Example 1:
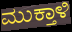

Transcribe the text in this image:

ಮುಕ್ತಾಳಿ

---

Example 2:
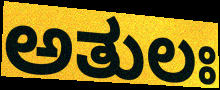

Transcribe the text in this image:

ಅತುಲಃ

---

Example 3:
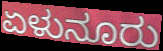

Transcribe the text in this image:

ಏಳುನೂರು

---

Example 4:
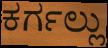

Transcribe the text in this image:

ಕರ್ಗಲ್ಲು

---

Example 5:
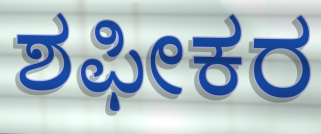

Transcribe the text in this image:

ಶಫೀಕರ